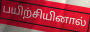
பயிற்சியினால்